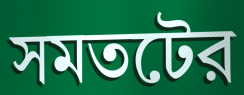
সমতটের